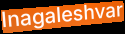
Inagaleshvar